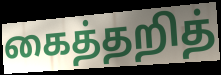
கைத்தறித்